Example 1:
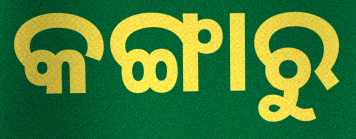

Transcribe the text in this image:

କଙ୍ଗାରୁ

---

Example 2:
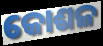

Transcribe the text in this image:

କୋଶଳ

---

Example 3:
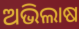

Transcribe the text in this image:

ଅଭିଲାଷ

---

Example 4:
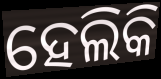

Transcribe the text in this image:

ହେଲିକି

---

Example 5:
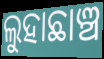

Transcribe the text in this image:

ଲୁହାଛାଞ୍ଚ